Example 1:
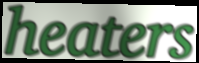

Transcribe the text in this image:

heaters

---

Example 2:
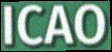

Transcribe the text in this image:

ICAO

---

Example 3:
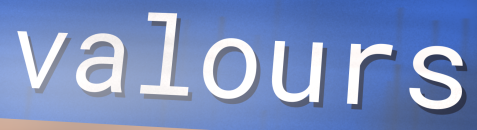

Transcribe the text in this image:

valours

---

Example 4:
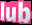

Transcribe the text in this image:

lub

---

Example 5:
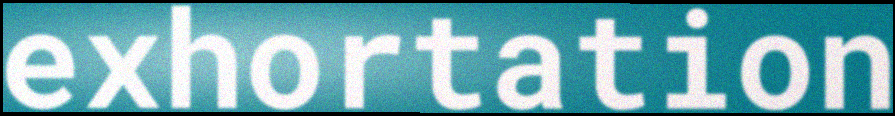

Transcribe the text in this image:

exhortation